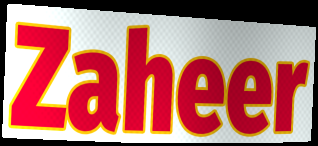
Zaheer